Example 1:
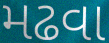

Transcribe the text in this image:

મઢવા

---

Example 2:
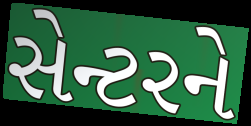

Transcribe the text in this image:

સેન્ટરને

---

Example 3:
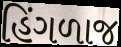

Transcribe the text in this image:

હિંગળાજ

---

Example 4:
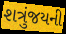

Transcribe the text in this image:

શત્રુંજયની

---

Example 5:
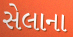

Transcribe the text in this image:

સેલાના